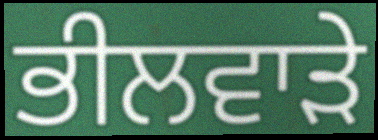
ਭੀਲਵਾੜੇ